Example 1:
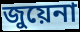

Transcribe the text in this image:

জুয়েনা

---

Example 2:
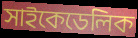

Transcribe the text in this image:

সাইকেডেলিক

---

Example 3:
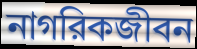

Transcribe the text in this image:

নাগরিকজীবন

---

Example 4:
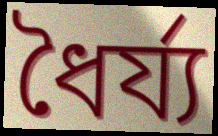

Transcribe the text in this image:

ধৈর্য্য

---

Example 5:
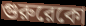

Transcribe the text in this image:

গুরুরেকো